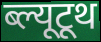
ब्ल्यूटूथ